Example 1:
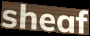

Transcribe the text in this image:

sheaf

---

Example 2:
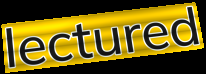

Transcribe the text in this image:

lectured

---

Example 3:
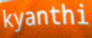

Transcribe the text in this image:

kyanthi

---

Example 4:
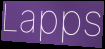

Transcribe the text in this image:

Lapps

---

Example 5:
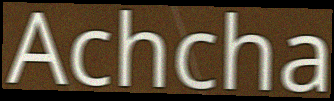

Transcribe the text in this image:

Achcha